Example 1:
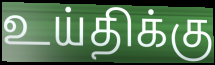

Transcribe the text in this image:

உய்திக்கு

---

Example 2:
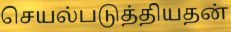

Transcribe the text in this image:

செயல்படுத்தியதன்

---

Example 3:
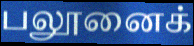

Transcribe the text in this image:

பலூனைக்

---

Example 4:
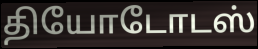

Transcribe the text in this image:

தியோடோடஸ்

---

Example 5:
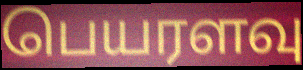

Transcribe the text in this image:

பெயரளவு